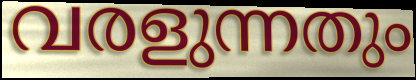
വരളുന്നതും